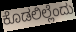
ಕೊಡಲಿಲ್ಲೆಂದು